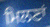
ਮਿਲਣਾਂ